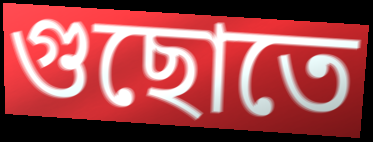
গুছোতে